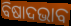
ବିଷାଦଭାବ